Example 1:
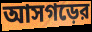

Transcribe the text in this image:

আসগড়ের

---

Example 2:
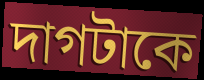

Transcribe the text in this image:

দাগটাকে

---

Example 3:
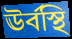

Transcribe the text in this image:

ঊর্বস্থি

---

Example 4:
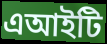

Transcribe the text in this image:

এআইটি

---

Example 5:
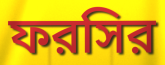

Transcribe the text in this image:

ফরসির